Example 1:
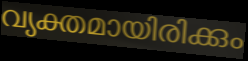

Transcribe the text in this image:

വ്യക്തമായിരിക്കും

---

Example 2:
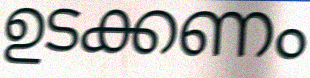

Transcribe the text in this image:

ഉടക്കണം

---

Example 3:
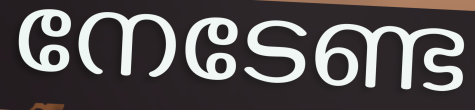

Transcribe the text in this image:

നേടേണ്ട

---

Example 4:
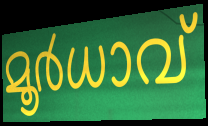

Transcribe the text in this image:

മൂർധാവ്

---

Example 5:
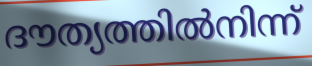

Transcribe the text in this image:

ദൗത്യത്തിൽനിന്ന്